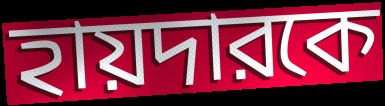
হায়দারকে